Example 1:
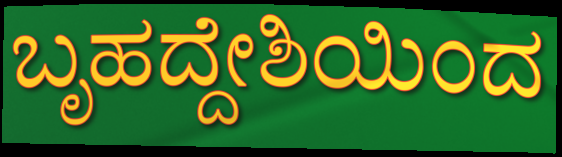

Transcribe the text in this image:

ಬೃಹದ್ದೇಶಿಯಿಂದ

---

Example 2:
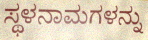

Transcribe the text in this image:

ಸ್ಥಳನಾಮಗಳನ್ನು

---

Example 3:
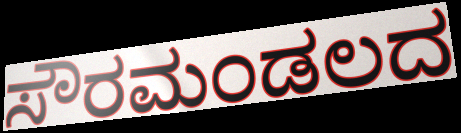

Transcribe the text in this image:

ಸೌರಮಂಡಲದ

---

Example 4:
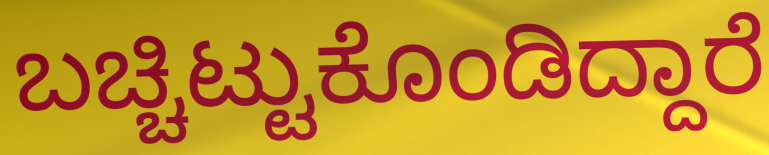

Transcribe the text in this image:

ಬಚ್ಚಿಟ್ಟುಕೊಂಡಿದ್ದಾರೆ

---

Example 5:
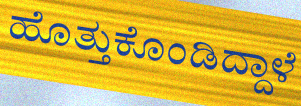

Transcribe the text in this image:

ಹೊತ್ತುಕೊಂಡಿದ್ದಾಳೆ